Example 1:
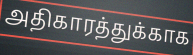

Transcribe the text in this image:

அதிகாரத்துக்காக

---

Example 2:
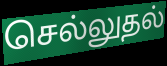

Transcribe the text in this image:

செல்லுதல்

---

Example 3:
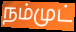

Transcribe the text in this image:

நம்முட்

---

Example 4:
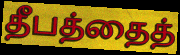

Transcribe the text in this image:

தீபத்தைத்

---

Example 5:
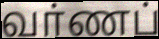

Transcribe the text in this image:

வர்ணப்